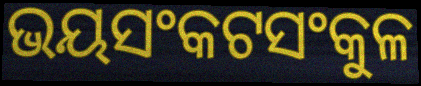
ଭୟସଂକଟସଂକୁଳ